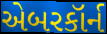
એબરકૉર્ન